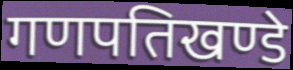
गणपतिखण्डे